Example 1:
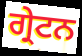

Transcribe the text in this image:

ਗ੍ਰੇਟਨ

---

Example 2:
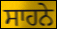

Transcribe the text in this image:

ਸਾਹਨੇ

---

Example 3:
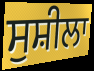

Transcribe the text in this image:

ਸੁਸ਼ੀਲਾ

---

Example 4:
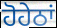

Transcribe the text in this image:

ਹੋਹੇਠਾਂ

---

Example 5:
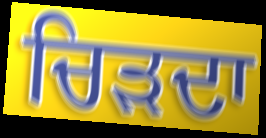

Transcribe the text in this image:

ਚਿੜਦਾ